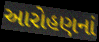
આરોહણનાં